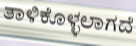
ತಾಳಿಕೊಳ್ಳಲಾಗದೆ